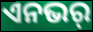
ଏନଭର୍